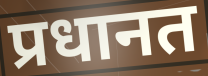
प्रधानत